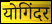
योगिंदर